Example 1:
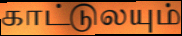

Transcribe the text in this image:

காட்டுலயும்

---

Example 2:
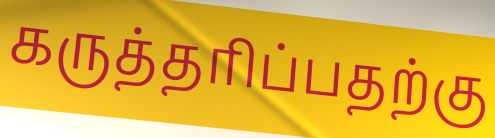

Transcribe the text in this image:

கருத்தரிப்பதற்கு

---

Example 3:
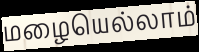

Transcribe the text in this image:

மழையெல்லாம்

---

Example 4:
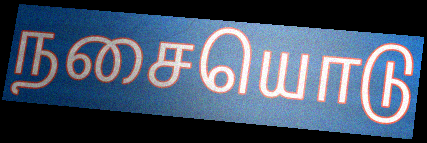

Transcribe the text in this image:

நசையொடு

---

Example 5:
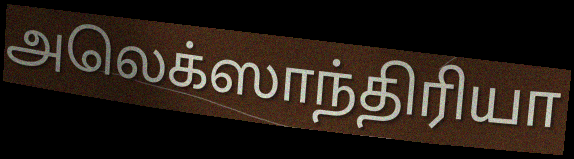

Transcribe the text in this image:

அலெக்ஸாந்திரியா